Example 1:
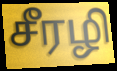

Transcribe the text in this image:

சீரழி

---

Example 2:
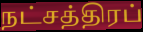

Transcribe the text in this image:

நட்சத்திரப்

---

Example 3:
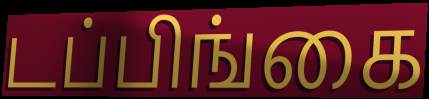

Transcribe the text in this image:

டப்பிங்கை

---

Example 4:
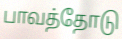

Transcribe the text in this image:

பாவத்தோடு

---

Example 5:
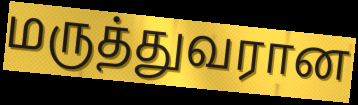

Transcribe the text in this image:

மருத்துவரான